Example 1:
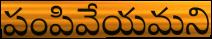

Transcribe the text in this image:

పంపివేయమని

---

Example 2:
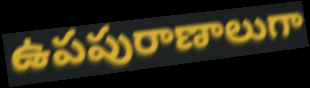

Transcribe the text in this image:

ఉపపురాణాలుగా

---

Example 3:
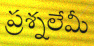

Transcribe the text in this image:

ప్రశ్నలేమీ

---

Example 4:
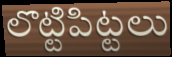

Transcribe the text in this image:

లొట్టిపిట్టలు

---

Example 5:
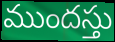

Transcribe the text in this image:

ముందస్తు